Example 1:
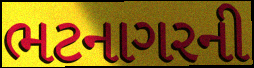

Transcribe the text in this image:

ભટનાગરની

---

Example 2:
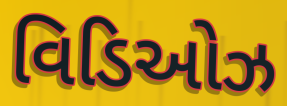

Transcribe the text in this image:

વિડિઓઝ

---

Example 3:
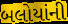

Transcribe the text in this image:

બલોયાંની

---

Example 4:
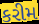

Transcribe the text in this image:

કરીમ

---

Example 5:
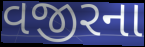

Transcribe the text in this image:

વજીરના